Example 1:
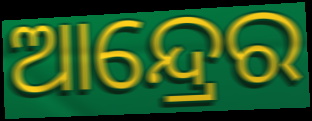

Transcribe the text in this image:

ଆନ୍ଦ୍ରେର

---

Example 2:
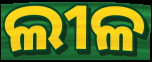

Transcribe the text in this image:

ଲୀଳ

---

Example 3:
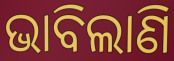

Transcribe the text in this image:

ଭାବିଲାଣି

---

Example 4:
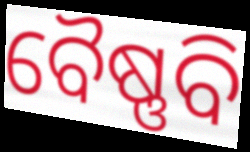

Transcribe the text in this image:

ବୈଷ୍ଣବି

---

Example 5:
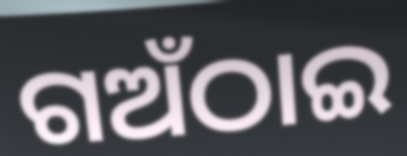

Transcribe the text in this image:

ଗଅଁଠାଇ